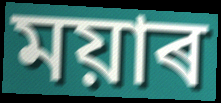
ময়াৰ